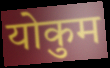
योकुम